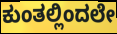
ಕುಂತಲ್ಲಿಂದಲೇ